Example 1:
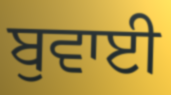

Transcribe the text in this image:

ਬੁਵਾਈ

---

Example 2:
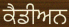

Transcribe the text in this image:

ਕੈਡੀਅਨ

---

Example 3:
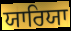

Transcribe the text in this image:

ਯਾਰਿਯਾ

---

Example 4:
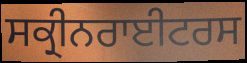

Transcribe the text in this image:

ਸਕ੍ਰੀਨਰਾਈਟਰਸ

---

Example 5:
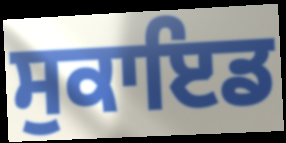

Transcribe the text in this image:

ਸੁਕਾਇਡ